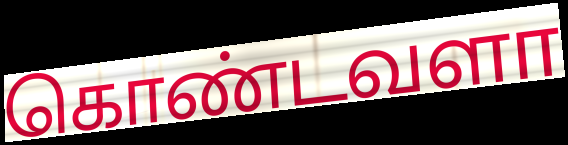
கொண்டவளா